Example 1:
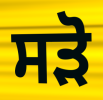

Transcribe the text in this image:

ਸੜੋ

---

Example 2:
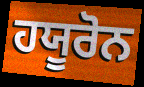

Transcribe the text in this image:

ਹਯੂਰੋਨ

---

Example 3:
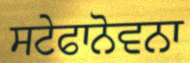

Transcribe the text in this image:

ਸਟੇਫਾਨੋਵਨਾ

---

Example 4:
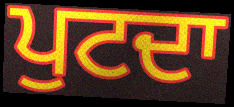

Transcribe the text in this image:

ਪੁਟਦਾ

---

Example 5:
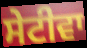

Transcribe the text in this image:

ਸੇਟੀਵਾ